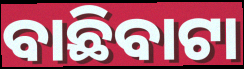
ବାଛିବାଟା